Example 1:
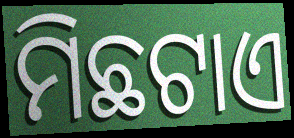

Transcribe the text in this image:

ମିଛଟାଏ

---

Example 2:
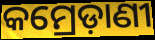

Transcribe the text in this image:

କମ୍ରେଡ଼ାଣୀ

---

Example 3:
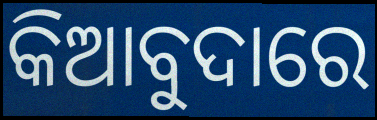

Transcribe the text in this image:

କିଆବୁଦାରେ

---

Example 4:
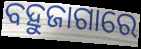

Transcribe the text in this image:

ବହୁଜାଗାରେ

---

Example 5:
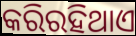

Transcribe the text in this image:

କରିରହିଥାଏ